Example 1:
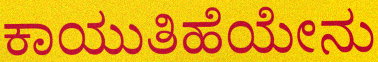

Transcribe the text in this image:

ಕಾಯುತಿಹೆಯೇನು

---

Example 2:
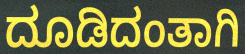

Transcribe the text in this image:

ದೂಡಿದಂತಾಗಿ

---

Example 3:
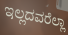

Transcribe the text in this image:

ಇಲ್ಲದವರೆಲ್ಲಾ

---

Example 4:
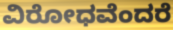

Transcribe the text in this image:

ವಿರೋಧವೆಂದರೆ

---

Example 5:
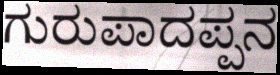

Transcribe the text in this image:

ಗುರುಪಾದಪ್ಪನ